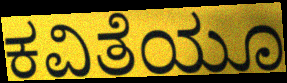
ಕವಿತೆಯೂ